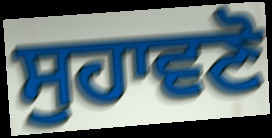
ਸੁਹਾਵਣੋ